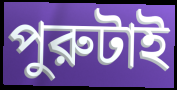
পুরুটাই